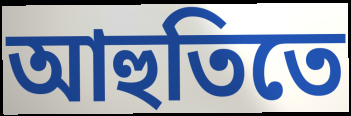
আহুতিতে